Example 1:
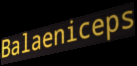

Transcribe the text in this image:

Balaeniceps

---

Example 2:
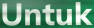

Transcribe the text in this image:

Untuk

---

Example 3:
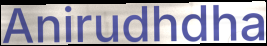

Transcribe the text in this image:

Anirudhdha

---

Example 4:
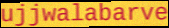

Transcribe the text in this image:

ujjwalabarve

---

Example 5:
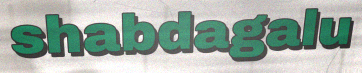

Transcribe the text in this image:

shabdagalu